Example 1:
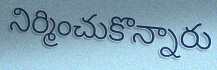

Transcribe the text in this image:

నిర్మించుకొన్నారు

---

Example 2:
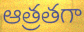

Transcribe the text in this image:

ఆత్రతగా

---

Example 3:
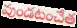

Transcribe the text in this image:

వుండటంచేత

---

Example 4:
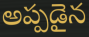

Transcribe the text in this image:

అప్పడైన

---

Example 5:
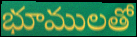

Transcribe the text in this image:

భూములతో